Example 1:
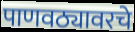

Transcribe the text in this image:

पाणवठ्यावरचे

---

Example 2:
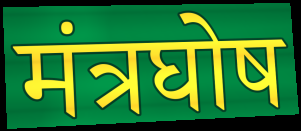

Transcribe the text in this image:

मंत्रघोष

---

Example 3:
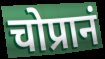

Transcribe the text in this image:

चोप्रानं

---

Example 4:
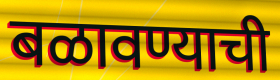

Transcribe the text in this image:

बळावण्याची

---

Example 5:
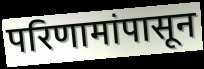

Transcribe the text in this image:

परिणामांपासून